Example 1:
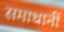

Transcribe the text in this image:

समाधानीं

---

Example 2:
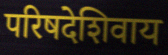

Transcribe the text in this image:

परिषदेशिवाय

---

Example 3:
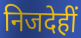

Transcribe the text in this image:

निजदेहीं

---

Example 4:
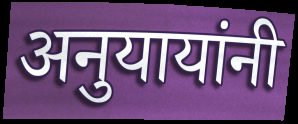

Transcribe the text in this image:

अनुयायांनी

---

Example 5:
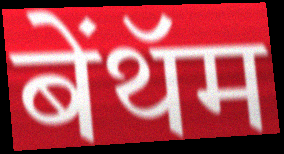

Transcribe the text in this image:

बेंथॅम